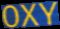
OXY